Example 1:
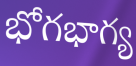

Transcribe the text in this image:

భోగభాగ్య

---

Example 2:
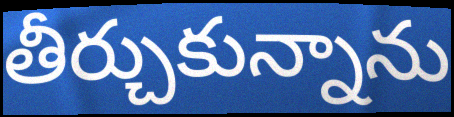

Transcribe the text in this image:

తీర్చుకున్నాను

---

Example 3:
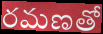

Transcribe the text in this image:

రమణతో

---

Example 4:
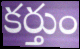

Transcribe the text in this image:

కర్తుం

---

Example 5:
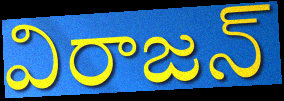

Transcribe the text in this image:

విరాజన్